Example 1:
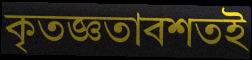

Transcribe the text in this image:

কৃতজ্ঞতাবশতই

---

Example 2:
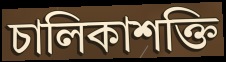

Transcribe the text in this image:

চালিকাশক্তি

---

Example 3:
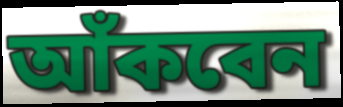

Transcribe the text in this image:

আঁকবেন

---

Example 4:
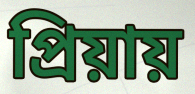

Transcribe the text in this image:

প্রিয়ায়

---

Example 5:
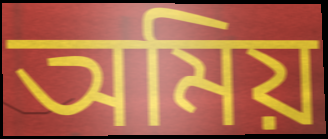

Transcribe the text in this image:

অমিয়